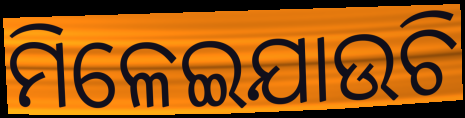
ମିଳେଇଯାଉଚି